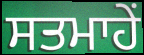
ਸਤਮਾਹੇਂ